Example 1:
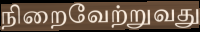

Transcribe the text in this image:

நிறைவேற்றுவது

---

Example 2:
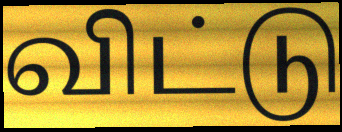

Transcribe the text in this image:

விட்டு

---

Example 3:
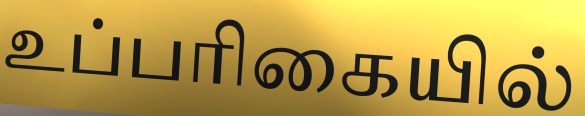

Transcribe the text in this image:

உப்பரிகையில்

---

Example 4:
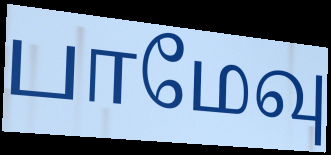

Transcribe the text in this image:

பாமேவு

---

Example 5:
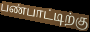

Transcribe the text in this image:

பண்பாட்டிற்கு